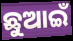
ଛୁଆଇଁ